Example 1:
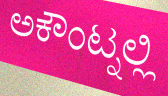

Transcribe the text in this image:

ಅಕೌಂಟ್ನಲ್ಲಿ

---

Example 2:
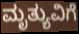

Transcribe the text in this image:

ಮೃತ್ಯುವಿಗೆ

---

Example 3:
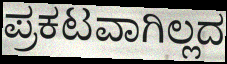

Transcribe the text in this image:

ಪ್ರಕಟವಾಗಿಲ್ಲದ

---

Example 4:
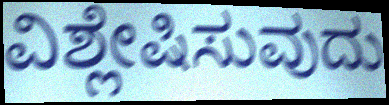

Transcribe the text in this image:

ವಿಶ್ಲೇಷಿಸುವುದು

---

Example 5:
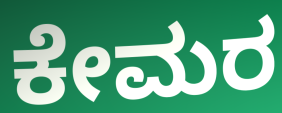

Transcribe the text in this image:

ಕೇಮರ